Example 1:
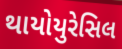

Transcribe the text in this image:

થાયોયુરેસિલ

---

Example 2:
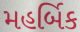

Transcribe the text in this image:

મહર્બિક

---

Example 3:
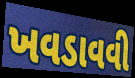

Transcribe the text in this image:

ખવડાવવી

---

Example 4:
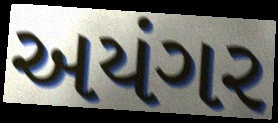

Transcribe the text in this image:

અયંગર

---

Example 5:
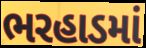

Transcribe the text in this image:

ભરહાડમાં